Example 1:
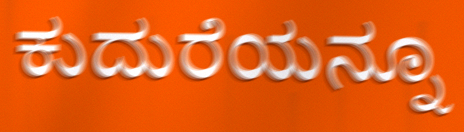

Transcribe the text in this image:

ಕುದುರೆಯನ್ನೂ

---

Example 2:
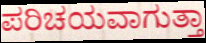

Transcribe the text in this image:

ಪರಿಚಯವಾಗುತ್ತಾ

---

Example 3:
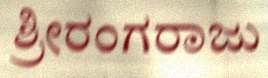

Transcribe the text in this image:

ಶ್ರೀರಂಗರಾಜು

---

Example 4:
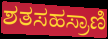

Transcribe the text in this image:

ಶತಸಹಸ್ರಾಣಿ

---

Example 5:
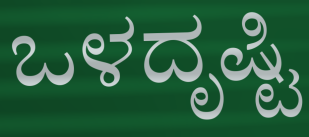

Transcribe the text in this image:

ಒಳದೃಷ್ಟಿ